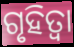
ଗୃହିତ୍ବା